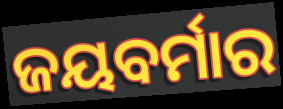
ଜୟବର୍ମାର